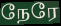
நேரே